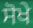
ਸੋਖੇ